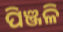
ପିଞ୍ଜଳି